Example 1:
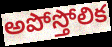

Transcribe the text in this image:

అపోస్తోలిక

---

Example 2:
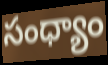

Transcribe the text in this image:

సంధ్యాం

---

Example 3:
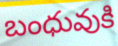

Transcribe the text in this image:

బంధువుకి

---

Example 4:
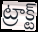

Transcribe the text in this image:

ట్రాక్ట్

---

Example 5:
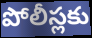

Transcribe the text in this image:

పోలీస్లకు